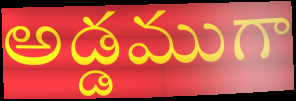
అడ్డముగా